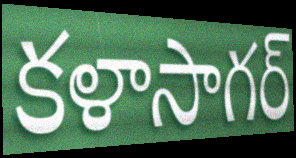
కళాసాగర్